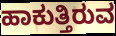
ಹಾಕುತ್ತಿರುವ